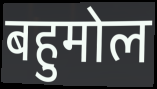
बहुमोल